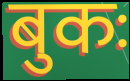
बुकः